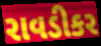
રાવડીકર